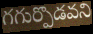
గగుర్పొడవని